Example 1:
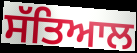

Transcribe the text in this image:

ਸੱਤਿਆਲ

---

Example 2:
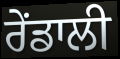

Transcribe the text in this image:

ਰੇਂਡਾਲੀ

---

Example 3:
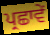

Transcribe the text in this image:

ਪ੍ਰਛਾਵੇਂ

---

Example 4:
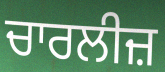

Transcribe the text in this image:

ਚਾਰਲੀਜ਼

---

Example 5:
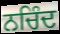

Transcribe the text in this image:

ਨਚਿੰਦ